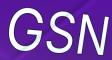
GSN